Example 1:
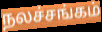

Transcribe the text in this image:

நலச்சங்கம்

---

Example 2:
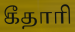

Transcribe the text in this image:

கீதாரி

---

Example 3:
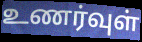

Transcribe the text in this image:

உணர்வுள்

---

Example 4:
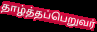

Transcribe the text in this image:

தாழ்த்தப்பெறுவர்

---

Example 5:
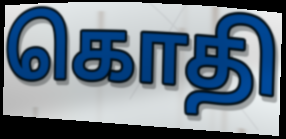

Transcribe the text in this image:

கொதி